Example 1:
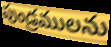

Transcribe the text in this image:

పుండ్రములను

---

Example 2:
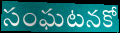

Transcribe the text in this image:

సంఘటనకో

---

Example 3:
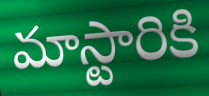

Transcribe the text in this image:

మాస్టారికి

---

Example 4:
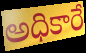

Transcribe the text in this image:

అధికారే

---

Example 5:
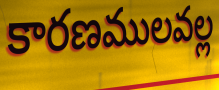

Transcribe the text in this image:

కారణములవల్ల